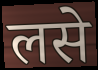
लसे